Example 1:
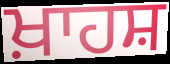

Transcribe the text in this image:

ਖ਼ਾਹਸ਼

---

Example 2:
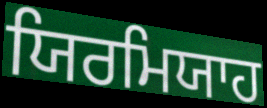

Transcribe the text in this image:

ਯਿਰਮਿਯਾਹ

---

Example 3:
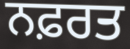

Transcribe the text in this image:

ਨਫ਼ਰਤ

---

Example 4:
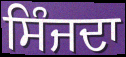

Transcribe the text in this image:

ਸਿੰਜਦਾ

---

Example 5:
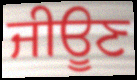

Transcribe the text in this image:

ਜੀਊਣ